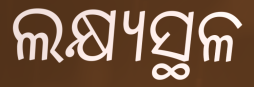
ଲକ୍ଷ୍ୟସ୍ଥଳ